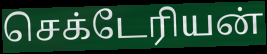
செக்டேரியன்